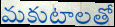
మకుటాలతో